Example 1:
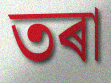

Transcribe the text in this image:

তৰা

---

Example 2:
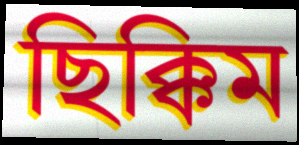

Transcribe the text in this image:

ছিক্কিম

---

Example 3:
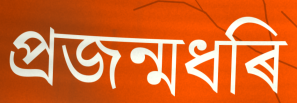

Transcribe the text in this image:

প্ৰজন্মধৰি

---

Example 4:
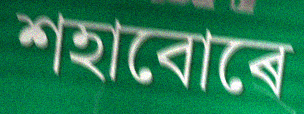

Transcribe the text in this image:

শহাবোৰে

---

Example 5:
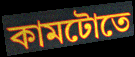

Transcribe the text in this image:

কামটোতে